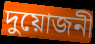
দুয়োজনী